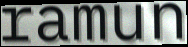
ramun